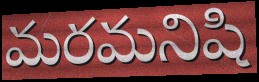
మరమనిషి